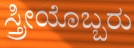
ಸ್ತ್ರೀಯೊಬ್ಬರು